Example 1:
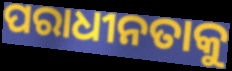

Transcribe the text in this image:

ପରାଧୀନତାକୁ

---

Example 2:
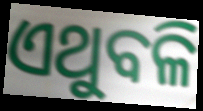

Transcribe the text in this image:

ଏଥୁବଳି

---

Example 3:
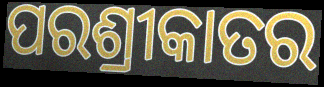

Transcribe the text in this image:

ପରଶ୍ରୀକାତର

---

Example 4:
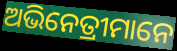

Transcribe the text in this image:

ଅଭିନେତ୍ରୀମାନେ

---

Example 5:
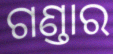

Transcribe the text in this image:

ଗଣ୍ଡାର